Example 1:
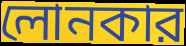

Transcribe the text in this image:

লোনকার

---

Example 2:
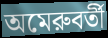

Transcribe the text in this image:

অমেরুবর্তী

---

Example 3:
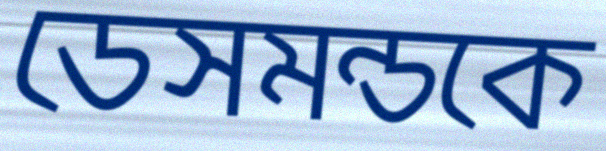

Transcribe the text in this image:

ডেসমন্ডকে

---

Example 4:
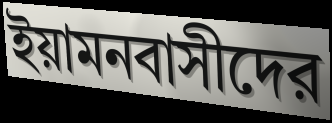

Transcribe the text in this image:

ইয়ামনবাসীদের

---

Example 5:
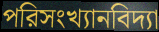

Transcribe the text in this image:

পরিসংখ্যানবিদ্যা